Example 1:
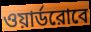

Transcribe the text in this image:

ওয়ার্ডরোবে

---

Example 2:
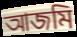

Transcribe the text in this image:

আজমি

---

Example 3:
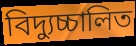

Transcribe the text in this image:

বিদ্যুচ্চালিত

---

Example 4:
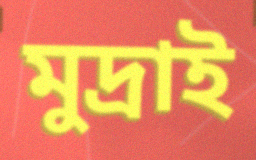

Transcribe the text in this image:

মুদ্রাই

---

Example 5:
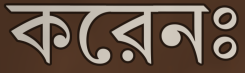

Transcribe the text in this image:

করেনঃ